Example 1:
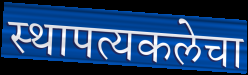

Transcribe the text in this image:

स्थापत्यकलेचा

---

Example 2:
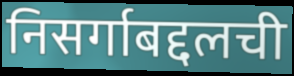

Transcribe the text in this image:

निसर्गाबद्दलची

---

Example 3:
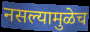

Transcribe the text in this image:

नसल्यामुळेच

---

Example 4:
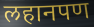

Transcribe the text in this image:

लहानपण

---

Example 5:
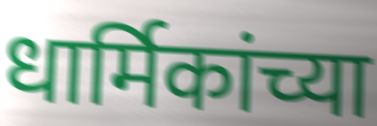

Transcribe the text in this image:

धार्मिकांच्या